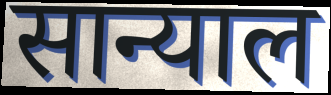
सान्याल